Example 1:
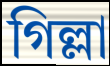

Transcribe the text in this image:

গিল্লা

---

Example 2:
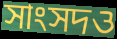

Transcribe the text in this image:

সাংসদও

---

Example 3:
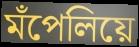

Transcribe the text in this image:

মঁপেলিয়ে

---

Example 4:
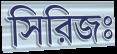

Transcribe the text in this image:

সিরিজঃ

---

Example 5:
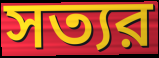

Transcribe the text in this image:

সত্যর